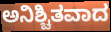
ಅನಿಶ್ಚಿತವಾದ